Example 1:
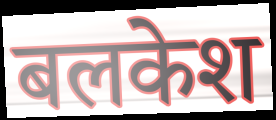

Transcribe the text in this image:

बलकेश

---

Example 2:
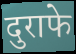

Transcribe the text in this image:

दुराफे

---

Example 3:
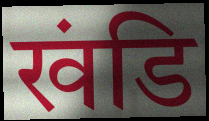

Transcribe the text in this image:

खंडि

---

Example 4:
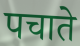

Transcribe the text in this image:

पचाते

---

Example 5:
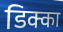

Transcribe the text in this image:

डिक्का